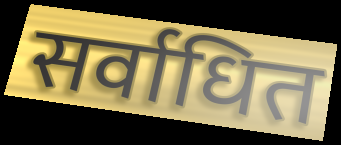
सर्वाधित